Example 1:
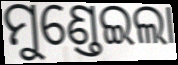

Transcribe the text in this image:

ମୁଣ୍ଡେଇଲା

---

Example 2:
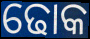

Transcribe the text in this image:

ଢୋକ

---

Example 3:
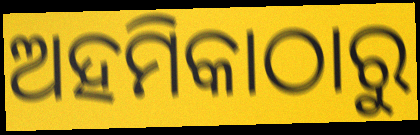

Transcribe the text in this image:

ଅହମିକାଠାରୁ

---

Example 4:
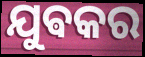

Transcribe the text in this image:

ଯୁଵକର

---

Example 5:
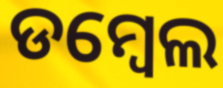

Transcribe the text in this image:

ଡମ୍ୱେଲ